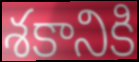
శకానికి